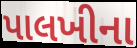
પાલખીના